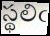
స్థలిఁ